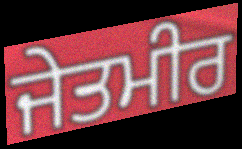
ਜੇਤਮੀਰ